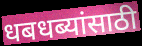
धबधब्यांसाठी